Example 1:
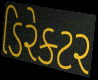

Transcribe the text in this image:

ડિરેક્ટર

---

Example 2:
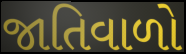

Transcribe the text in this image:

જાતિવાળો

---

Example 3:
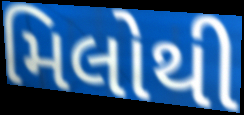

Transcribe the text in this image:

મિલોથી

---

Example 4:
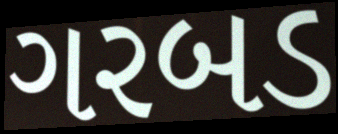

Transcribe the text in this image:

ગરબડ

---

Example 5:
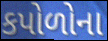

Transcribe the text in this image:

કપોળોના